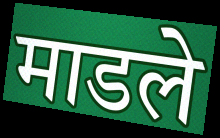
माडले